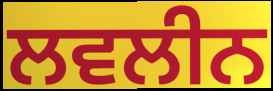
ਲਵਲੀਨ